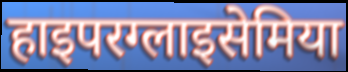
हाइपरग्लाइसेमिया